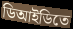
ডিআইডিতে